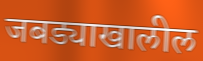
जबड्याखालील